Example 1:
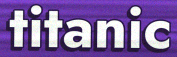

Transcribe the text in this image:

titanic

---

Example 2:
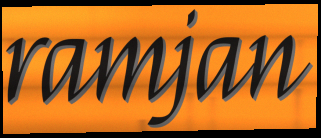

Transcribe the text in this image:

ramjan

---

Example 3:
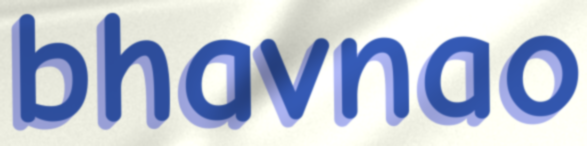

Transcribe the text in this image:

bhavnao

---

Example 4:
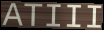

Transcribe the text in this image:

ATIII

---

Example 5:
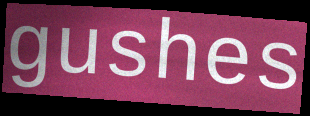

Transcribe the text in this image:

gushes